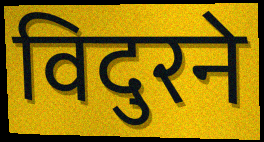
विदुरने